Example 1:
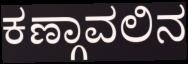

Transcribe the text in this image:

ಕಣ್ಗಾವಲಿನ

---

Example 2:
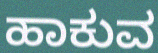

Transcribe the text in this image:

ಹಾಕುವ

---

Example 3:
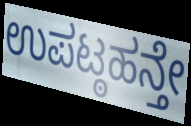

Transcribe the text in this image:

ಉಪಟ್ಠಹನ್ತೇ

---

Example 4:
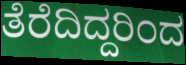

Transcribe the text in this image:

ತೆರೆದಿದ್ದರಿಂದ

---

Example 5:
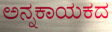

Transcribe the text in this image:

ಅನ್ನಕಾಯಕದ